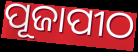
ପୂଜାପୀଠ